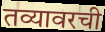
तव्यावरची